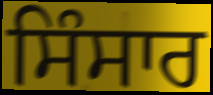
ਸਿੰਸਾਰ